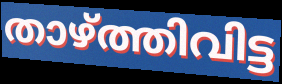
താഴ്ത്തിവിട്ട